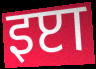
इप्टा